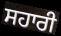
ਸਹਾਰੀ